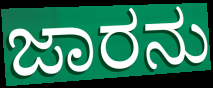
ಜಾರನು